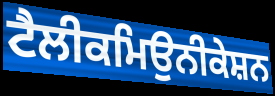
ਟੈਲੀਕਮਿਉਨੀਕੇਸ਼ਨ